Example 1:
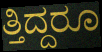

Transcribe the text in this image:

ತ್ತಿದ್ದರೂ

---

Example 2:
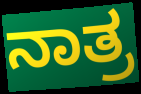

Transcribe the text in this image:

ನಾತ್ರ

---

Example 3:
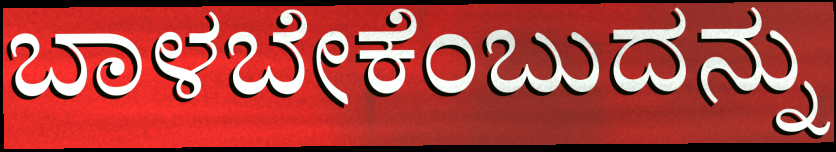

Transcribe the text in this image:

ಬಾಳಬೇಕೆಂಬುದನ್ನು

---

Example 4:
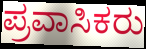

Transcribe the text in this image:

ಪ್ರವಾಸಿಕರು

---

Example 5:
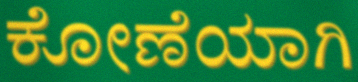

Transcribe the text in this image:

ಕೋಣೆಯಾಗಿ